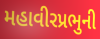
મહાવીરપ્રભુની